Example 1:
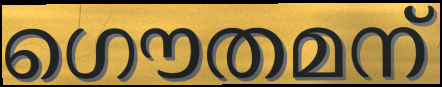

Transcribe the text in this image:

ഗൌതമന്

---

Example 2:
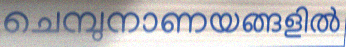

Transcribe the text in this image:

ചെമ്പുനാണയങ്ങളിൽ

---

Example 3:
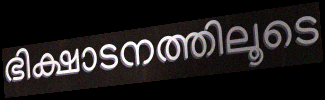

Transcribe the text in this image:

ഭിക്ഷാടനത്തിലൂടെ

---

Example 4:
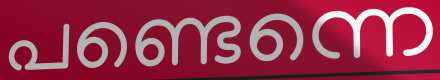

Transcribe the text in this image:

പണ്ടെന്നെ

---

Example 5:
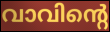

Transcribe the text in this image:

വാവിന്റെ